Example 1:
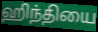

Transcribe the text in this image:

ஹிந்தியை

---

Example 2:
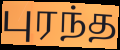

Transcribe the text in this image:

புரந்த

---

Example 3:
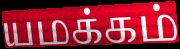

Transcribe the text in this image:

யமக்கம்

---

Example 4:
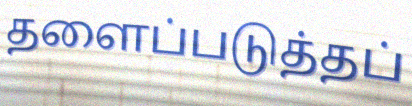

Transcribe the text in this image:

தளைப்படுத்தப்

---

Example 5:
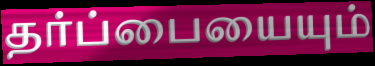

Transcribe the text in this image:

தர்ப்பையையும்